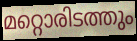
മറ്റൊരിടത്തും